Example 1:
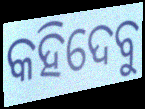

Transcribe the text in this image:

କହିଦେବୁ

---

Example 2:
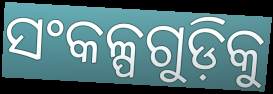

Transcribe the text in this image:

ସଂକଳ୍ପଗୁଡ଼ିକୁ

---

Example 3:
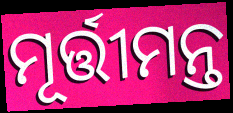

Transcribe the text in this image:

ମୂର୍ତ୍ତୀମନ୍ତ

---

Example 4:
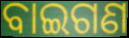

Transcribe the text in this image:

ବାଇଗଣ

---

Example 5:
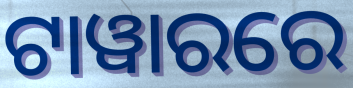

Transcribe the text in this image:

ଟାୱାରରେ